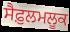
ਸੈਫ਼ੁਲਮਲੂਕ